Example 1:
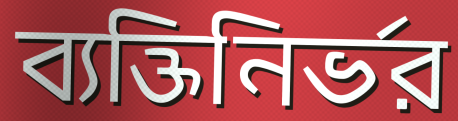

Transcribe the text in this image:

ব্যক্তিনির্ভর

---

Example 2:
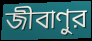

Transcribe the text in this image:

জীবাণুর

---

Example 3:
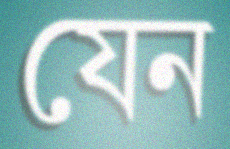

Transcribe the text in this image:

যেন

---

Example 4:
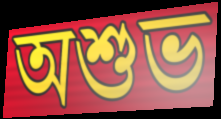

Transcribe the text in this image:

অশুভ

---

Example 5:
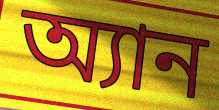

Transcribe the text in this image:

অ্যান